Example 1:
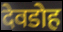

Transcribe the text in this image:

देवडोह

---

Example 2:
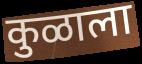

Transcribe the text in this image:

कुळाला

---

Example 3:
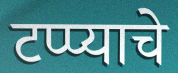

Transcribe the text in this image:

टप्प्याचे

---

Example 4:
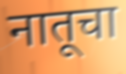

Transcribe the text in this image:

नातूचा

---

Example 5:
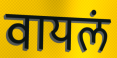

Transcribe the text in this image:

वायलं